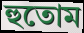
হুতোম